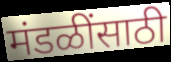
मंडळींसाठी